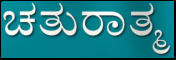
ಚತುರಾತ್ಮ